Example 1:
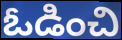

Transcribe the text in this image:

ఓడించి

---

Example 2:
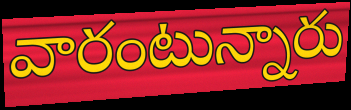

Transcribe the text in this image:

వారంటున్నారు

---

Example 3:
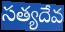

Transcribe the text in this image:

సత్యదేవ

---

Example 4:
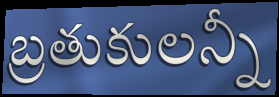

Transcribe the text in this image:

బ్రతుకులన్నీ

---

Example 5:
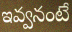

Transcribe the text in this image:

ఇవ్వనంటే